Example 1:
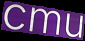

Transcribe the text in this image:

cmu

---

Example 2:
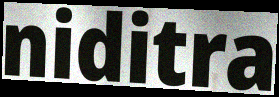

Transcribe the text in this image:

niditra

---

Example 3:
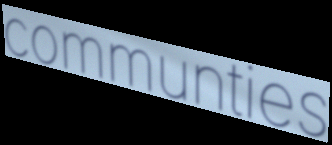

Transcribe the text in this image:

communties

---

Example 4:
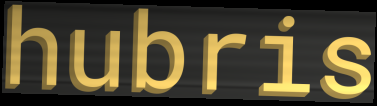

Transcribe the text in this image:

hubris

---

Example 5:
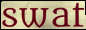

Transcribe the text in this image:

swat